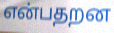
என்பதறன